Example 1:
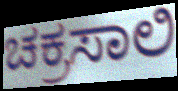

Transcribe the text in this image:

ಚಕ್ರಸಾಲಿ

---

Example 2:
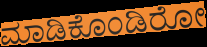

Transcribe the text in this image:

ಮಾಡಿಕೊಂಡಿರೋ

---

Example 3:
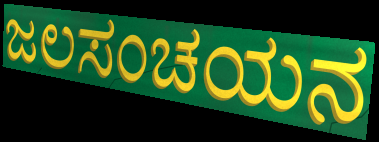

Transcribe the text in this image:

ಜಲಸಂಚಯನ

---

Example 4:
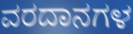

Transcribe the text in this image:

ವರದಾನಗಳ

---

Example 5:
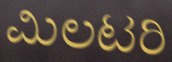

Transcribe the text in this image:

ಮಿಲಟರಿ